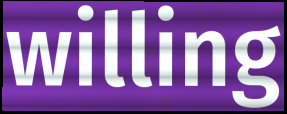
willing